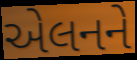
એલનને